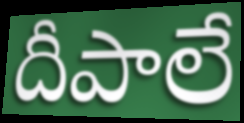
దీపాలే